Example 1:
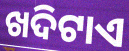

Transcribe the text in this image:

ଖଦିଟାଏ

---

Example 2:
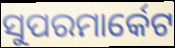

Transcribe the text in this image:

ସୁପରମାର୍କେଟ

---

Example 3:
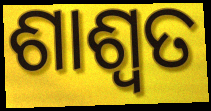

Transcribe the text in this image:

ଶାଶ୍ଵତ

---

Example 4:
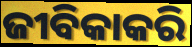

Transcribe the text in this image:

ଜୀବିକାକରି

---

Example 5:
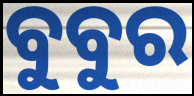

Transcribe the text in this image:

ବୁବୁର